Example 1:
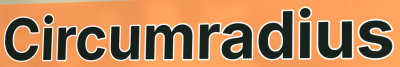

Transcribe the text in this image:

Circumradius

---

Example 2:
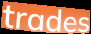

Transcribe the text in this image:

trades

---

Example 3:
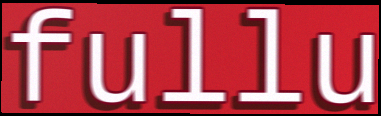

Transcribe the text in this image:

fullu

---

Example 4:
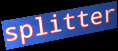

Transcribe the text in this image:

splitter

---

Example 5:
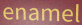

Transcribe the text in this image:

enamel